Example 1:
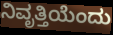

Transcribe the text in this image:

ನಿವೃತ್ತಿಯೆಂದು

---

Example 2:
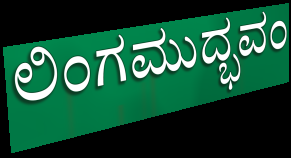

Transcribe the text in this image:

ಲಿಂಗಮುದ್ಭವಂ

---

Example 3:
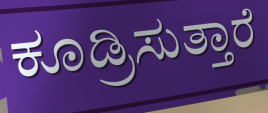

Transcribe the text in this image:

ಕೂಡ್ರಿಸುತ್ತಾರೆ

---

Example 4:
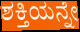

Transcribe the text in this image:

ಶಕ್ತಿಯನ್ನೇ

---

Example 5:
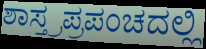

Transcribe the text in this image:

ಶಾಸ್ತ್ರಪ್ರಪಂಚದಲ್ಲಿ